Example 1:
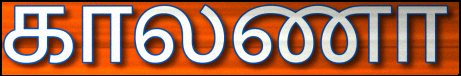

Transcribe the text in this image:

காலணா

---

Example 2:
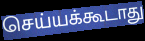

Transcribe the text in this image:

செய்யக்கூடாது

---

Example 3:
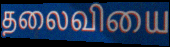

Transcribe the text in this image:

தலைவியை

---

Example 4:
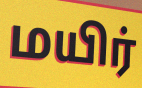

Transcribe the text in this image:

மயிர்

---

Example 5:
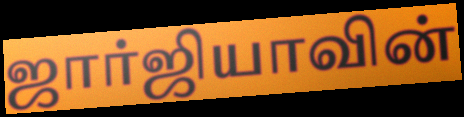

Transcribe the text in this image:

ஜார்ஜியாவின்